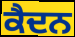
ਕੈਦਨ